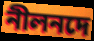
নীলনদে